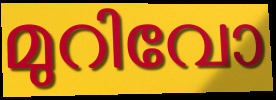
മുറിവോ